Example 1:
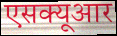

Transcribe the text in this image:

एसक्यूआर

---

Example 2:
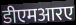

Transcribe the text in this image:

डीएमआरए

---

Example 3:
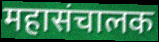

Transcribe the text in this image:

महासंचालक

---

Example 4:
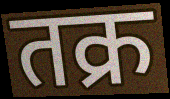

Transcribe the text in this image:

तक्र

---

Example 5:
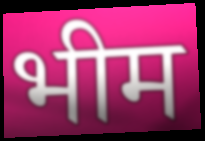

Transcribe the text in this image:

भीम